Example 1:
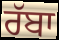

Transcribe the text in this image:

ਰੱਬਾ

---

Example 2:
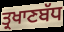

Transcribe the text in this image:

ਤ੍ਰਖਾਣਬੱਧ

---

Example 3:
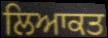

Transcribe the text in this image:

ਲਿਆਕਤ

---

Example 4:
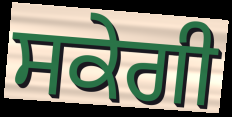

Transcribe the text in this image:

ਸਕੇਗੀ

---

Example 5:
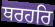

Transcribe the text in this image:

ਥਰਹਰਿ